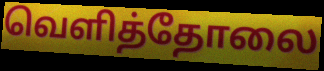
வெளித்தோலை